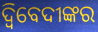
ଦ୍ଵିବେଦୀଙ୍କର